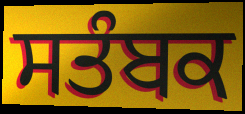
ਸਤੰਬਕ